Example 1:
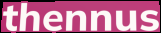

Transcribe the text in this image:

thennus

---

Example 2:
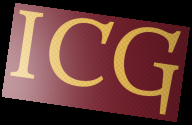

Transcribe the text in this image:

ICG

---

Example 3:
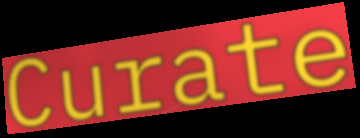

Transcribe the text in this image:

Curate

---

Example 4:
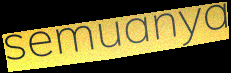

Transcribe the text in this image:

semuanya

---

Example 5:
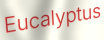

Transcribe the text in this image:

Eucalyptus